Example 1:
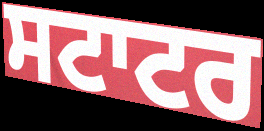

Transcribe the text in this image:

ਸਟਾਟਰ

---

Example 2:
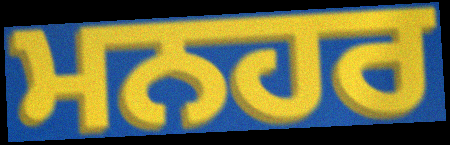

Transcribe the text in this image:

ਮਨਹਰ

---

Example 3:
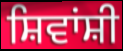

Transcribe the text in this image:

ਸ਼ਿਵਾਂਸ਼ੀ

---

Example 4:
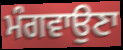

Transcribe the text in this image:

ਮੰਗਵਾਉਣਾ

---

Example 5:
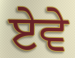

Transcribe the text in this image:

ਏਵੇ